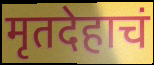
मृतदेहाचं